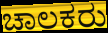
ಚಾಲಕರು